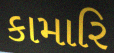
કામારિ